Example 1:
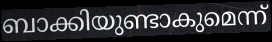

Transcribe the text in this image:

ബാക്കിയുണ്ടാകുമെന്ന്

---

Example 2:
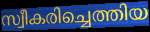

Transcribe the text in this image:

സ്വീകരിച്ചെത്തിയ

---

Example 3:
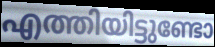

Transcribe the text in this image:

എത്തിയിട്ടുണ്ടോ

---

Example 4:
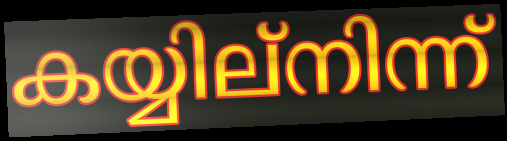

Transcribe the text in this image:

കയ്യില്നിന്ന്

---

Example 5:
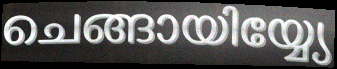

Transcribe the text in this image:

ചെങ്ങായിയ്യ്യേ